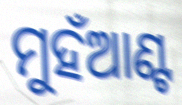
ମୁହଁଆଣ୍ଟ